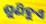
ଶୁଣିହୁଏ